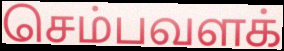
செம்பவளக்